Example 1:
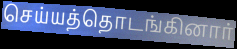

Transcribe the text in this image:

செய்யத்தொடங்கினார்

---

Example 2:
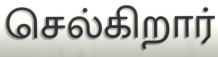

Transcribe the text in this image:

செல்கிறார்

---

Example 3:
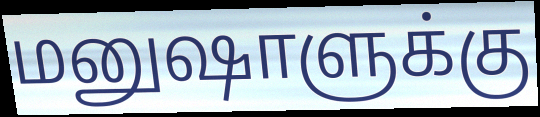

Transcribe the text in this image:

மனுஷாளுக்கு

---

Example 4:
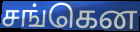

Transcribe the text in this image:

சங்கென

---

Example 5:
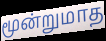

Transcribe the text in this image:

மூன்றுமாத